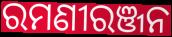
ରମଣୀରଞ୍ଜନ